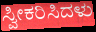
ಸ್ವೀಕರಿಸಿದಳು